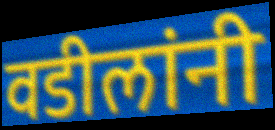
वडीलांनी